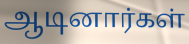
ஆடினார்கள்